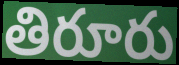
తిరూరు